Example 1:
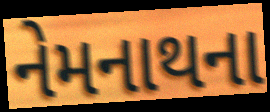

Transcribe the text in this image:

નેમનાથના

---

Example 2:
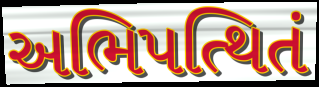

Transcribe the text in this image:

અભિપત્થિતં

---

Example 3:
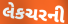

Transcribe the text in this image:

લેકચરની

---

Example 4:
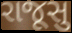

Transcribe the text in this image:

રાજૂસુ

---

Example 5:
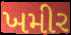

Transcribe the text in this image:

ખમીર